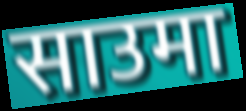
साउमा